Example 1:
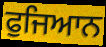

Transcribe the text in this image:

ਫੁਜਿਆਨ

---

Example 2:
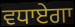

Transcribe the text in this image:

ਵਧਾਏਗਾ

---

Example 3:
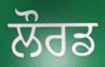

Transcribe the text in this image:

ਲੌਰਡ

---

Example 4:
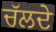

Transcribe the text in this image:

ਚੱਲਦੇ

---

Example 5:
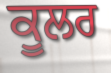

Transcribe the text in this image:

ਕੂਲਰ